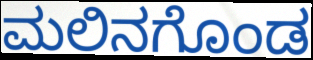
ಮಲಿನಗೊಂಡ